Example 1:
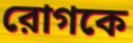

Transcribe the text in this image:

রোগকে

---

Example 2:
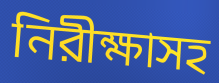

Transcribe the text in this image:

নিরীক্ষাসহ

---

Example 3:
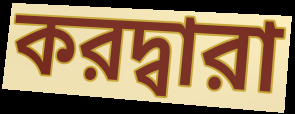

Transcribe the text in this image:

করদ্বারা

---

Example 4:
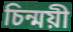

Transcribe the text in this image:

চিন্ময়ী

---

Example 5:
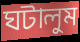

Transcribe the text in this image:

ঘটালুম